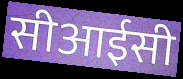
सीआईसी